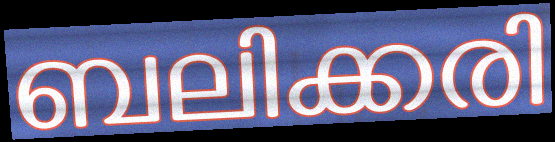
ബലിക്കരി